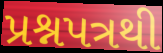
પ્રશ્નપત્રથી